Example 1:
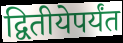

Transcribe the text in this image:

द्वितीयेपर्यंत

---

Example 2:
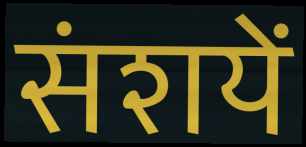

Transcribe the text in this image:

संशयें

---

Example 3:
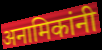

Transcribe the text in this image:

अनामिकांनी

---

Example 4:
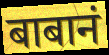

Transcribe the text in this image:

बाबानं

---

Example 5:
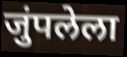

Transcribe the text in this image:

जुंपलेला